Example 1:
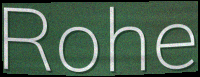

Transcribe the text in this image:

Rohe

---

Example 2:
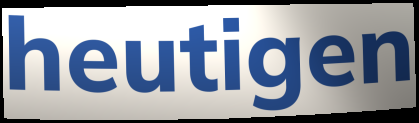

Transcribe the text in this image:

heutigen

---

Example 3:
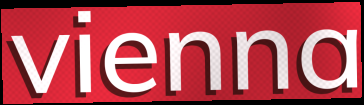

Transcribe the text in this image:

vienna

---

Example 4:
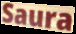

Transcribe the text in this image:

Saura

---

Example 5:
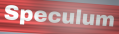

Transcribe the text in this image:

Speculum